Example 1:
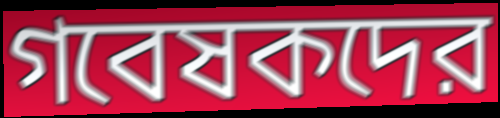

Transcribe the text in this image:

গবেষকদের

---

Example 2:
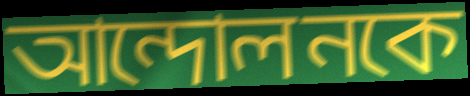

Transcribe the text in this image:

আন্দোলনকে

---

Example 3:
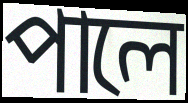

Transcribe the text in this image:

পালে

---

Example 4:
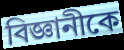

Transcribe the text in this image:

বিজ্ঞানীকে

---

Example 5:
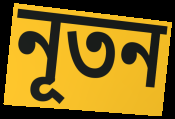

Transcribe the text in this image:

নূতন